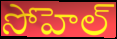
సోహెల్